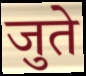
जुते